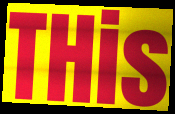
THis